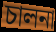
চালনা